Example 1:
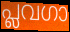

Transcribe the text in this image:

പ്ലവഗാ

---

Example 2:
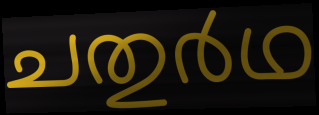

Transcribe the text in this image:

ചതുർഥ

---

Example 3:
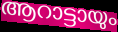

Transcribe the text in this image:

ആറാട്ടായും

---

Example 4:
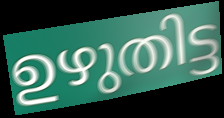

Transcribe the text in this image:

ഉഴുതിട്ട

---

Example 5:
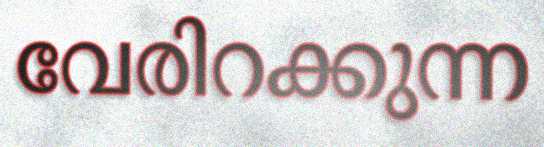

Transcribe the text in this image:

വേരിറക്കുന്ന